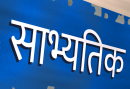
साभ्यतिक